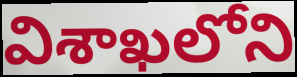
విశాఖలోని